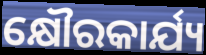
କ୍ଷୌରକାର୍ଯ୍ୟ